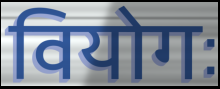
वियोगः